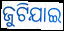
ଜୁଟିଯାଇ